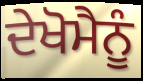
ਦੇਖੋਮੈਨੂੰ